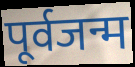
पूर्वजन्म